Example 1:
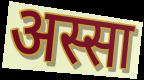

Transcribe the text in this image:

अस्सा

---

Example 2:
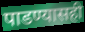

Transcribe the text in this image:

पाडण्यासही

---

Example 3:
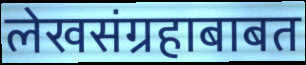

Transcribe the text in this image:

लेखसंग्रहाबाबत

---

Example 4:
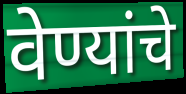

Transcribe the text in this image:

वेण्यांचे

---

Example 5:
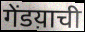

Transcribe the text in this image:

गेंडय़ाची